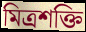
মিত্রশক্তি